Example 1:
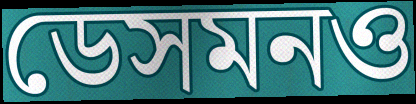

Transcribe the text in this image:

ডেসমনও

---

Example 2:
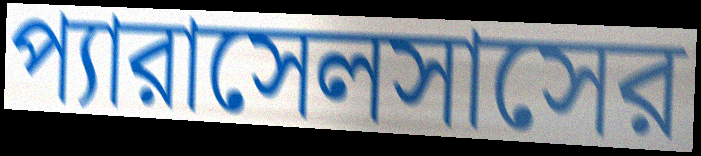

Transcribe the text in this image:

প্যারাসেলসাসের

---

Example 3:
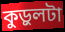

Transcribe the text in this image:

কুড়ুলটা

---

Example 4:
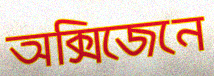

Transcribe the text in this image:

অক্সিজেনে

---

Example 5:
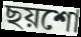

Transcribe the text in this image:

ছয়শো